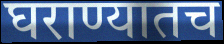
घराण्यातच